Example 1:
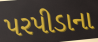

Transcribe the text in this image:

પરપીડાના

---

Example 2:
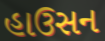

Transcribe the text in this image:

હાઉસન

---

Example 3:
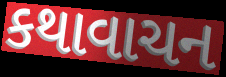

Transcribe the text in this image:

કથાવાચન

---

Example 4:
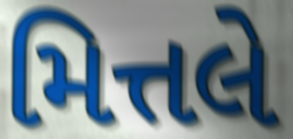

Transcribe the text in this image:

મિત્તલે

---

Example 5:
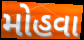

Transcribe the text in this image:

મોહવા